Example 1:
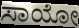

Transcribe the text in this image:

ಸಾಯೋ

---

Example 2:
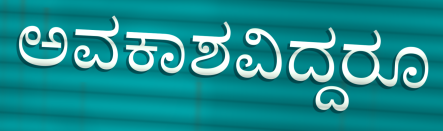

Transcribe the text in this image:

ಅವಕಾಶವಿದ್ದರೂ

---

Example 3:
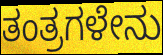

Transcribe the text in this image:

ತಂತ್ರಗಳೇನು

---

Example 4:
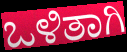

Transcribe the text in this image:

ಒಳಿತಾಗಿ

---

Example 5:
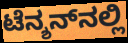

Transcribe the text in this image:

ಟೆನ್ಶನ್‌ನಲ್ಲಿ